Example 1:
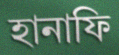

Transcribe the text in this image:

হানাফি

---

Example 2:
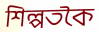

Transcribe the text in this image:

শিল্পতকৈ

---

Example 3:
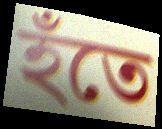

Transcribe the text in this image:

হঁতে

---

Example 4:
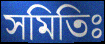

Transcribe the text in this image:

সমিতিঃ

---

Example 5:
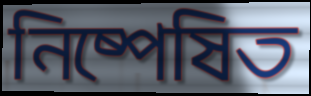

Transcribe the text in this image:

নিষ্পেষিত